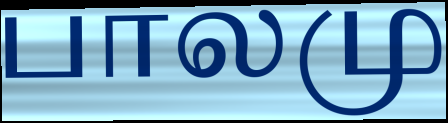
பாலமு